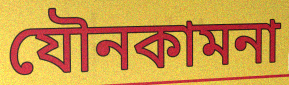
যৌনকামনা